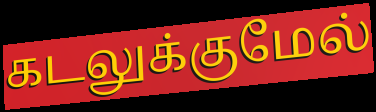
கடலுக்குமேல்